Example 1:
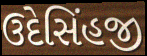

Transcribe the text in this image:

ઉદેસિંહજી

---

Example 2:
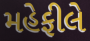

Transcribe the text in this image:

મહેફીલે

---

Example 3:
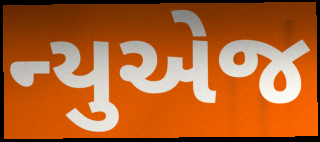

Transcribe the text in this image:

ન્યુએજ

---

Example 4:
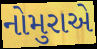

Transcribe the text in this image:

નોમુરાએ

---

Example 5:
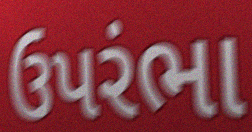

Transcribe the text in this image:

ઉપરંભા